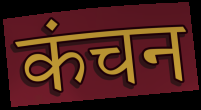
कंचन